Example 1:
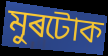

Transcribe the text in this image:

মুৰটোক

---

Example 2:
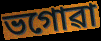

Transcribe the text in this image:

ভগোৱা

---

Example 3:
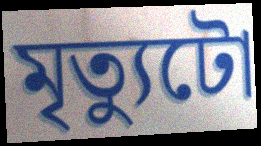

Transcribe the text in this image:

মৃত্যুটো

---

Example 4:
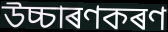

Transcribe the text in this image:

উচ্চাৰণকৰণ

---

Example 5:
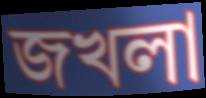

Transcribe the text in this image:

জখলা